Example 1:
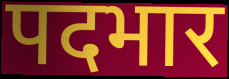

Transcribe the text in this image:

पदभार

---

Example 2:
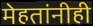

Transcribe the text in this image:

मेहतांनीही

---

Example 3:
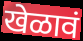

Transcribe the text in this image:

खेळावं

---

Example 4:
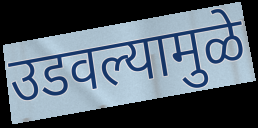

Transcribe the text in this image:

उडवल्यामुळे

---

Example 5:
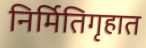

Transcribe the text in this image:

निर्मितिगृहात